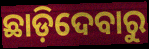
ଛାଡ଼ିଦେବାରୁ